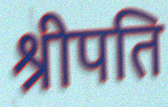
श्रीपति